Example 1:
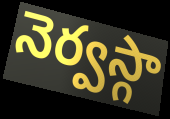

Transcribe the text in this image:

నెర్వస్గా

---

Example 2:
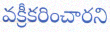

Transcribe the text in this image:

వక్రీకరించారని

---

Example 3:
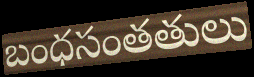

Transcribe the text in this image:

బంధసంతతులు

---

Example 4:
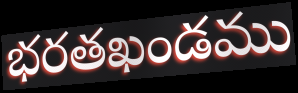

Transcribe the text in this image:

భరతఖండము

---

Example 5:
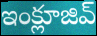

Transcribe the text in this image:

ఇంక్లూజివ్